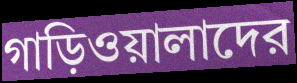
গাড়িওয়ালাদের